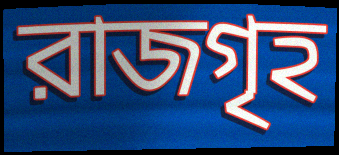
রাজগৃহ